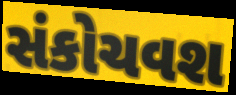
સંકોચવશ